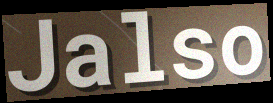
Jalso